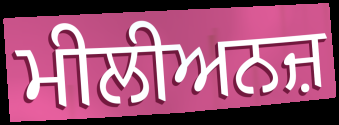
ਮੀਲੀਅਨਜ਼